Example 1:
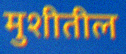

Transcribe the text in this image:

मुशीतील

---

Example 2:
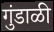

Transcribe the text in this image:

गुंडाळी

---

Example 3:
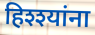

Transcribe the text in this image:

हिश्श्यांना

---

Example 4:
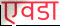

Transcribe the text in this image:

एवडा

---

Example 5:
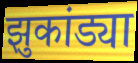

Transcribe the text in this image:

झुकांड्या